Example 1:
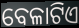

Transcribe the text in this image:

ବେଳାଟିଏ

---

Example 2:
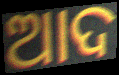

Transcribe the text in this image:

ଆଦ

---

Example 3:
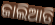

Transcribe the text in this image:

ଜାଲିଆତି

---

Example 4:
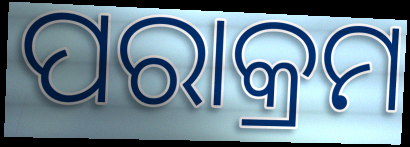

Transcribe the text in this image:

ପରାକ୍ରମ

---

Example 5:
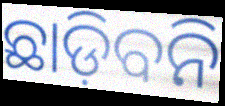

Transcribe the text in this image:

ଛାଡ଼ିବନି